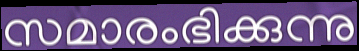
സമാരംഭിക്കുന്നു